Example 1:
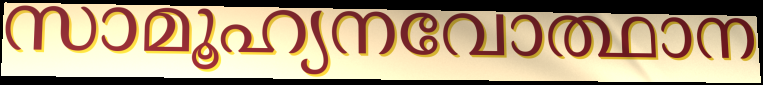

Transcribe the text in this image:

സാമൂഹ്യനവോത്ഥാന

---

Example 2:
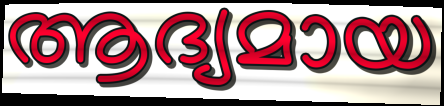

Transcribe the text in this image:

ആദ്യമായ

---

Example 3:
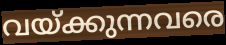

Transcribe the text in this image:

വയ്ക്കുന്നവരെ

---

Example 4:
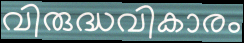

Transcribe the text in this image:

വിരുദ്ധവികാരം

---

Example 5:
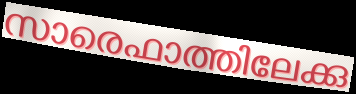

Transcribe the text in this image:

സാരെഫാത്തിലേക്കു